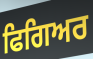
ਫਿਗਿਅਰ